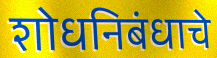
शोधनिबंधाचे